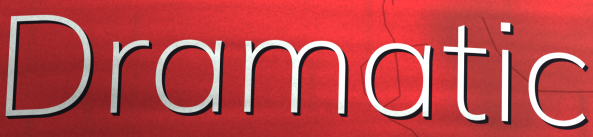
Dramatic